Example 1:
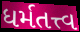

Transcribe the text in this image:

ધર્મતત્ત્વ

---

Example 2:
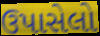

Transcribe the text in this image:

ઉપાસેલો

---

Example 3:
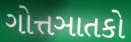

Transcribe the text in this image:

ગોત્તઞાતકો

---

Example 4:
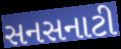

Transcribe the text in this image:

સનસનાટી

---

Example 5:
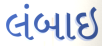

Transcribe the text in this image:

લંબાઇ